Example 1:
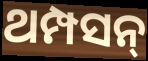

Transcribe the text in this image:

ଥମ୍ପସନ୍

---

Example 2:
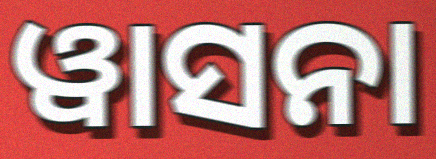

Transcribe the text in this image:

ୱାସନା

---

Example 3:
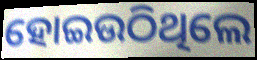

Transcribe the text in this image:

ହୋଇଉଠିଥିଲେ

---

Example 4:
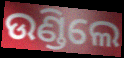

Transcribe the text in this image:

ଉଣ୍ଡିଲେ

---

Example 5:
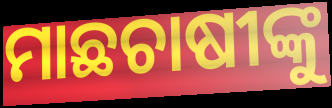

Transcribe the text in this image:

ମାଛଚାଷୀଙ୍କୁ